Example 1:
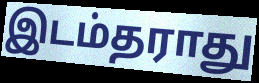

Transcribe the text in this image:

இடம்தராது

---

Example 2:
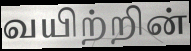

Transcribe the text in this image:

வயிற்றின்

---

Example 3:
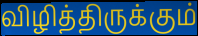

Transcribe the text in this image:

விழித்திருக்கும்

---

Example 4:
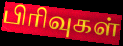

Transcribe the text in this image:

பிரிவுகள்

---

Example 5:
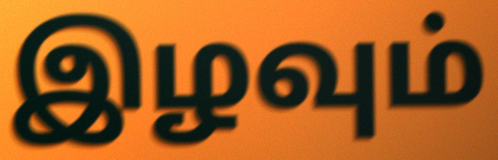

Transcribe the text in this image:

இழவும்